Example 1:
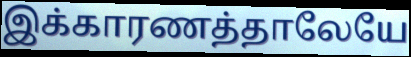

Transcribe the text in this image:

இக்காரணத்தாலேயே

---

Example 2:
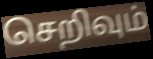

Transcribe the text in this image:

செறிவும்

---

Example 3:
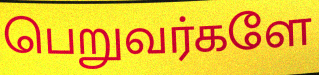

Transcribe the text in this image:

பெறுவர்களே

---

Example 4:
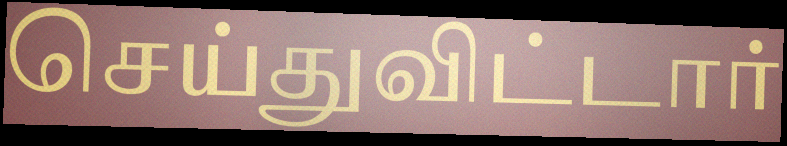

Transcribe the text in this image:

செய்துவிட்டார்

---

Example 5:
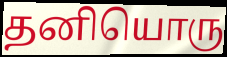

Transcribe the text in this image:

தனியொரு